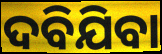
ଦବିଯିବା